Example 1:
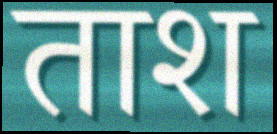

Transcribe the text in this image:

ताश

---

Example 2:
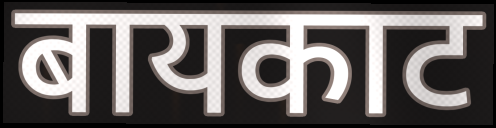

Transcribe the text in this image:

बायकाट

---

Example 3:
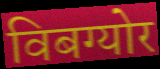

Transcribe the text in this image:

विबग्योर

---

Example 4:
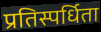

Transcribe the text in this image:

प्रतिस्पर्धिता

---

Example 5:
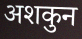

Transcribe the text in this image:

अशकुन